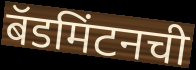
बॅडमिंटनची